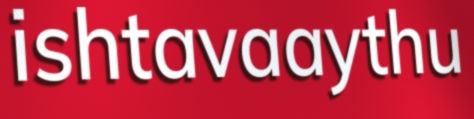
ishtavaaythu